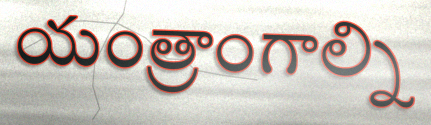
యంత్రాంగాల్ని